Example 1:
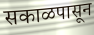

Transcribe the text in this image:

सकाळपासून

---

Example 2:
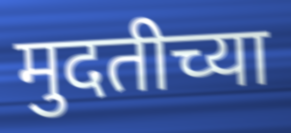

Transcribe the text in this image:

मुदतीच्या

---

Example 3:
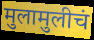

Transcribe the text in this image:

मुलामुलीचं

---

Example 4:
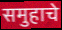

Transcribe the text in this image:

समुहाचे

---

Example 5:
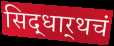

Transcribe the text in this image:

सिद्धार्थचं